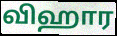
விஹார